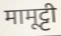
मामूट्टी